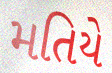
મતિયે